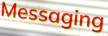
Messaging